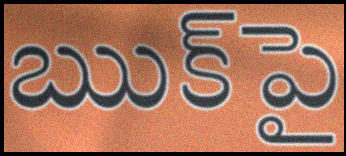
ఋక్‌పై